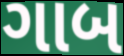
ગાબ